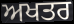
ਅਖਤਰ